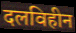
दलविहीन